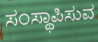
ಸಂಸ್ಥಾಪಿಸುವ